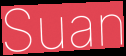
Suan